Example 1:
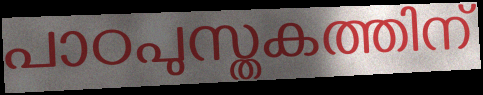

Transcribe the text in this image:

പാഠപുസ്തകത്തിന്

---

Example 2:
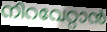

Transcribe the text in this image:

നിറവേറ്റാൻ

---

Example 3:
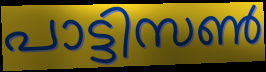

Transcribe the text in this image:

പാട്ടിസൺ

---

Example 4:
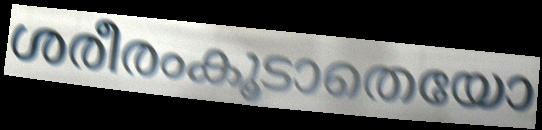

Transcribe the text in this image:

ശരീരംകൂടാതെയോ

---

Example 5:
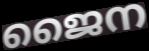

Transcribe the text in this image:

ജൈന